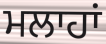
ਮਲਾਹਾਂ